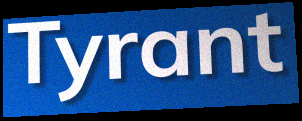
Tyrant